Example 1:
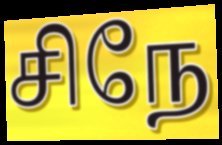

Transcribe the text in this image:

சிநே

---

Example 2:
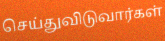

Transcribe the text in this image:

செய்துவிடுவார்கள்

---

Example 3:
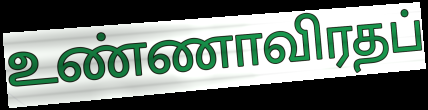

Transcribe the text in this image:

உண்ணாவிரதப்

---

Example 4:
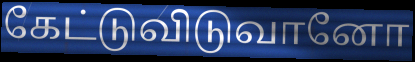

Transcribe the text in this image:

கேட்டுவிடுவானோ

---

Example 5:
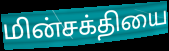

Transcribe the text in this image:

மின்சக்தியை